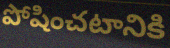
పోషించటానికి